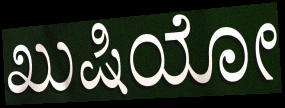
ಖುಷಿಯೋ